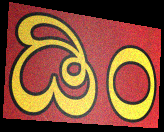
ಡಿಂ